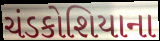
ચંડકોશિયાના